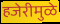
हजेरीमुळे